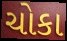
ચોકા